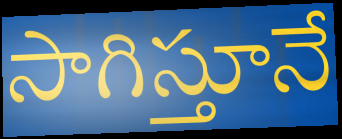
సాగిస్తూనే